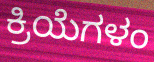
ಕ್ರಿಯೆಗಳಂ